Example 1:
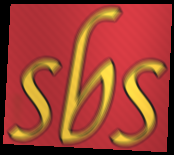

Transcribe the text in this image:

sbs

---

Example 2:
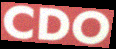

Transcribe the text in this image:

CDO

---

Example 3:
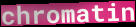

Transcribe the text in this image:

chromatin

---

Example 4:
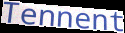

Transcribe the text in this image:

Tennent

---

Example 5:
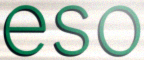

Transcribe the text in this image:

eso